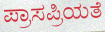
ಪ್ರಾಸಪ್ರಿಯತೆ